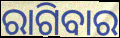
ରାଗିବାର